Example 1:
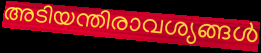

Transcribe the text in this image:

അടിയന്തിരാവശ്യങ്ങൾ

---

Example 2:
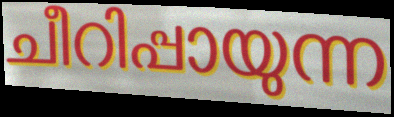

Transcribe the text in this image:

ചീറിപ്പായുന്ന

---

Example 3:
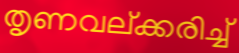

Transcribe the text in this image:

തൃണവല്ക്കരിച്ച്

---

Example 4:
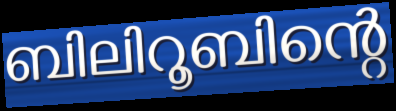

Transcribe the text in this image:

ബിലിറൂബിന്റെ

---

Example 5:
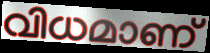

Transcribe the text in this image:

വിധമാണ്